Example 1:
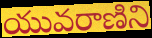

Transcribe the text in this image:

యువరాణిని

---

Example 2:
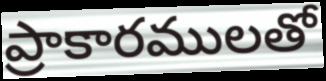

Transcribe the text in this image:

ప్రాకారములతో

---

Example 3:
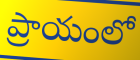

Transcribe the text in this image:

ప్రాయంలో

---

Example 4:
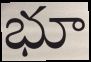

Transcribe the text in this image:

భూ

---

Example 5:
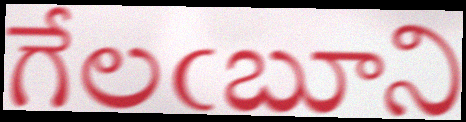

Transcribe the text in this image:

గేలఁబూని